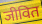
जीवित